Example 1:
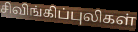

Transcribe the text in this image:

சிவிங்கிப்புலிகள்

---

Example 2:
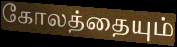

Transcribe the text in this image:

கோலத்தையும்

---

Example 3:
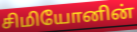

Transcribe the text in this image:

சிமியோனின்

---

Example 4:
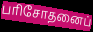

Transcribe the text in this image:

பரிசோதனைப்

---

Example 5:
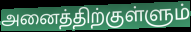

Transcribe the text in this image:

அனைத்திற்குள்ளும்